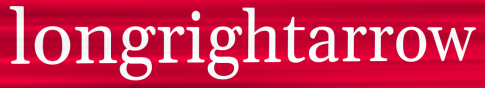
longrightarrow